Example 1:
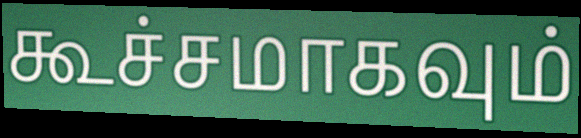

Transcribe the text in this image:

கூச்சமாகவும்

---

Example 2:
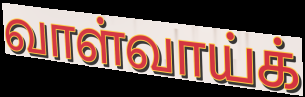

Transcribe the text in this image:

வாள்வாய்க்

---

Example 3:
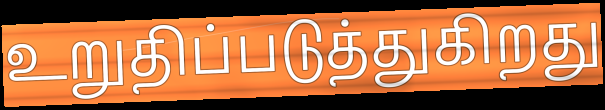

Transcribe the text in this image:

உறுதிப்படுத்துகிறது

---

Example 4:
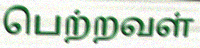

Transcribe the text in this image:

பெற்றவள்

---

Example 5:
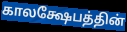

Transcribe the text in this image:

காலக்ஷேபத்தின்